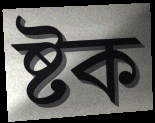
ষ্টক